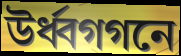
উর্ধ্বগগনে